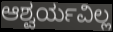
ಆಶ್ವರ್ಯವಿಲ್ಲ